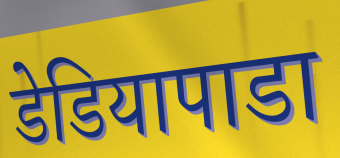
डेडियापाडा